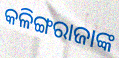
କଳିଙ୍ଗରାଜାଙ୍କ